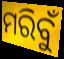
ମରିବୁଁ